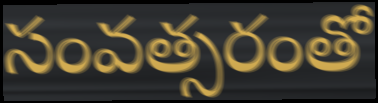
సంవత్సరంతో